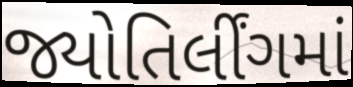
જ્યોતિર્લીંગમાં